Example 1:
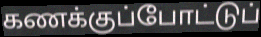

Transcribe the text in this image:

கணக்குப்போட்டுப்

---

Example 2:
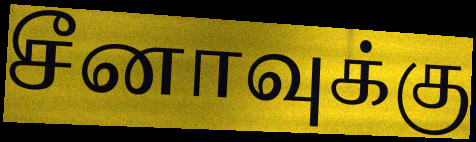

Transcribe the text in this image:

சீனாவுக்கு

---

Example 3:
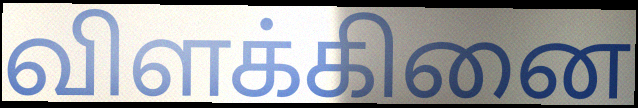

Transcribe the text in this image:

விளக்கினை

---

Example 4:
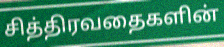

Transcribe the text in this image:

சித்திரவதைகளின்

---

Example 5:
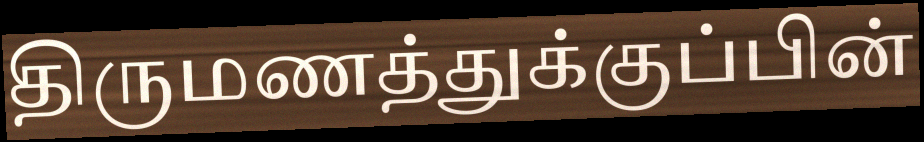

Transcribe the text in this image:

திருமணத்துக்குப்பின்